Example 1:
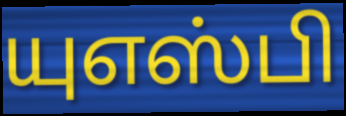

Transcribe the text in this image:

யுஎஸ்பி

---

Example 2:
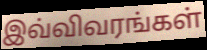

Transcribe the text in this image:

இவ்விவரங்கள்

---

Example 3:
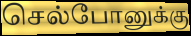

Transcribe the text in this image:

செல்போனுக்கு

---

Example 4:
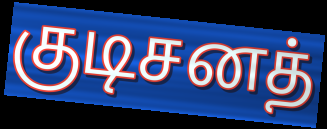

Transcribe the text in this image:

குடிசனத்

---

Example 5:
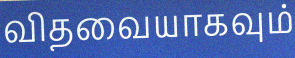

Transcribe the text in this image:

விதவையாகவும்